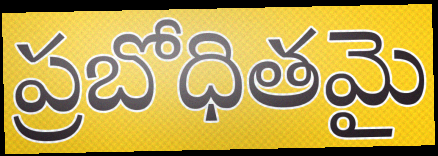
ప్రబోధితమై